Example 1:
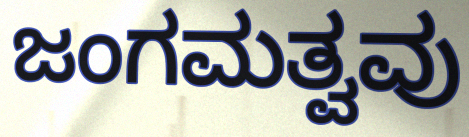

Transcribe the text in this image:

ಜಂಗಮತ್ವವು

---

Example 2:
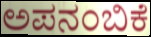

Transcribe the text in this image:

ಅಪನಂಬಿಕೆ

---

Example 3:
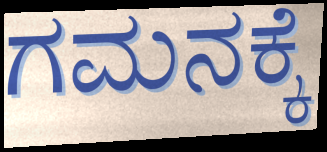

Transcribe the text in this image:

ಗಮನಕ್ಕೆ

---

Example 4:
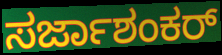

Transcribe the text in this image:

ಸರ್ಜಾಶಂಕರ್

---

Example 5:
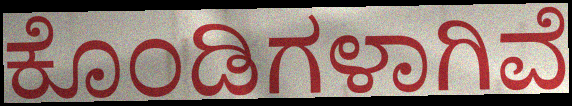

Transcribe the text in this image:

ಕೊಂಡಿಗಳಾಗಿವೆ